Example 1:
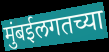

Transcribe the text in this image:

मुंबईलगतच्या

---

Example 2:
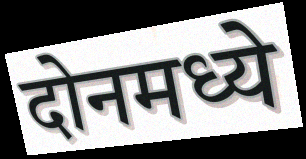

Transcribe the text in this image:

दोनमध्ये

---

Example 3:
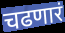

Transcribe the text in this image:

चढणारं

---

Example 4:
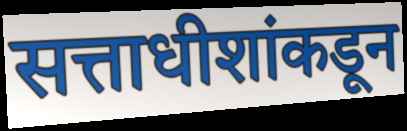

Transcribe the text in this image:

सत्ताधीशांकडून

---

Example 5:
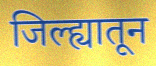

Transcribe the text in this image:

जिल्ह्यातून